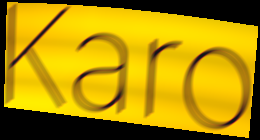
Karo